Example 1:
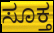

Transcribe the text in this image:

ಸೂಕ್ತ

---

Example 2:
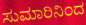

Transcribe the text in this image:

ಸುಮಾರಿನಿಂದ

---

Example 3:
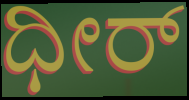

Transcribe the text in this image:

ಧೀರ್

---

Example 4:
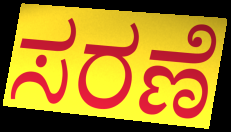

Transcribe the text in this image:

ಸರಣೆ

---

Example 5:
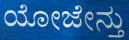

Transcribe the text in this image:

ಯೋಜೇನ್ತು